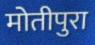
मोतीपुरा